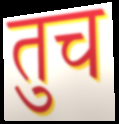
तुच